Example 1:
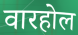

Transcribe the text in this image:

वारहोल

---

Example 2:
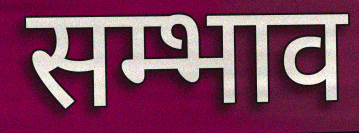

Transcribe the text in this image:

सम्भाव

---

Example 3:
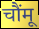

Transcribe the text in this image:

चौंमू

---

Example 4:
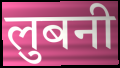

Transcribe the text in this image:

लुबनी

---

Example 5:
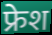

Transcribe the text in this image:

फ्रेश